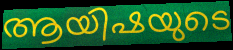
ആയിഷയുടെ